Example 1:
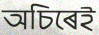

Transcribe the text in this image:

অচিৰেই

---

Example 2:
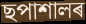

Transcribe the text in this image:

ছপাশালৰ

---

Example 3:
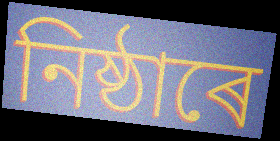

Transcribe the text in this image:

নিষ্ঠাৰে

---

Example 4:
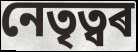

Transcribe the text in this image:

নেতৃত্বৰ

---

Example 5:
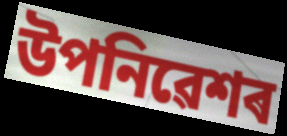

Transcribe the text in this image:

উপনিৱেশৰ